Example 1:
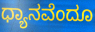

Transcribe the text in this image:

ಧ್ಯಾನವೆಂದೂ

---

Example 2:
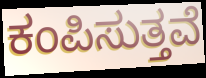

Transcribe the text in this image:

ಕಂಪಿಸುತ್ತವೆ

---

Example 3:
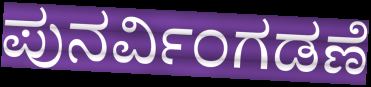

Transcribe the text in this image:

ಪುನರ್ವಿಂಗಡಣೆ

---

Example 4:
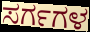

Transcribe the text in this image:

ಸರ್ಗಗಳ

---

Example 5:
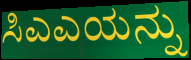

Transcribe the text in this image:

ಸಿಎಎಯನ್ನು